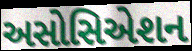
અસોસિએશન